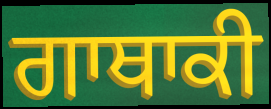
ਗਾਥਾਕੀ